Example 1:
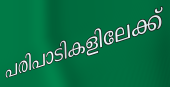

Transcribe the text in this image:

പരിപാടികളിലേക്ക്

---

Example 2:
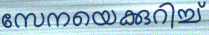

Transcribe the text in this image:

സേനയെക്കുറിച്ച്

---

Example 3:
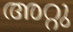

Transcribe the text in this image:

അറ്റു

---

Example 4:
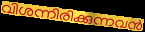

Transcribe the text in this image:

വിശന്നിരിക്കുന്നവൻ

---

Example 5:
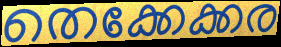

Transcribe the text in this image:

തെക്കേക്കര